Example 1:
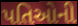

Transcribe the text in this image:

પતિઓની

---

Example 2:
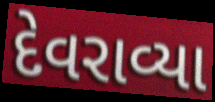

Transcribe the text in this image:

દેવરાવ્યા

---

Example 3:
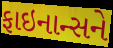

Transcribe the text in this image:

ફાઇનાન્સને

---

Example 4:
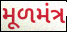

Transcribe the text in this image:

મૂળમંત્ર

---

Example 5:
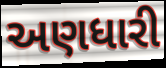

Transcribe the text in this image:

અણધારી